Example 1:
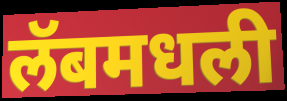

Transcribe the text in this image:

लॅबमधली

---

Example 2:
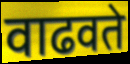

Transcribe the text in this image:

वाढवते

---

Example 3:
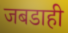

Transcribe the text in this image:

जबडाही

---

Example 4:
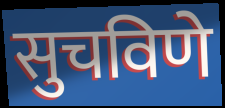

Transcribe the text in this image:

सुचविणे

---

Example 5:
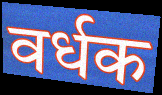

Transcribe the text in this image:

वर्धक